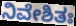
ನಿವೇಶಿತಃ